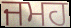
ਜਮਹ